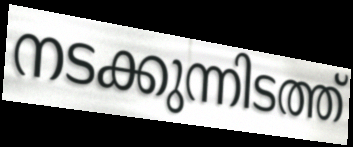
നടക്കുന്നിടത്ത്